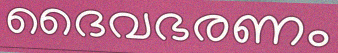
ദൈവഭരണം